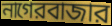
নাগেরবাজার